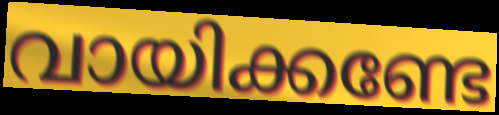
വായിക്കണ്ടേ